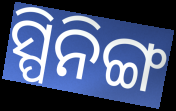
ସ୍ପିନିଙ୍ଗ